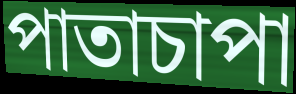
পাতাচাপা